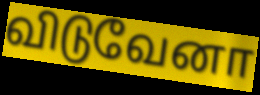
விடுவேனா